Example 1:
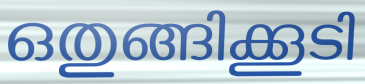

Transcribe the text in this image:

ഒതുങ്ങിക്കൂടി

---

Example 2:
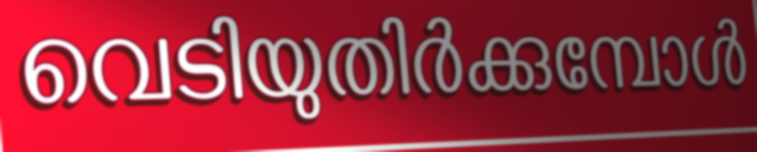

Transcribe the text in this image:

വെടിയുതിർക്കുമ്പോൾ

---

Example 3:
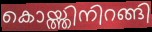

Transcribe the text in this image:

കൊയ്ത്തിനിറങ്ങി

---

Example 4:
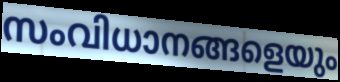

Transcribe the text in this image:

സംവിധാനങ്ങളെയും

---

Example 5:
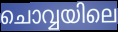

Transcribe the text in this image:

ചൊവ്വയിലെ